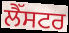
ਲੈੱਸਟਰ